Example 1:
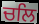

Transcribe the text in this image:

ਚਲਿ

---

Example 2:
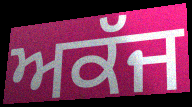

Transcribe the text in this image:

ਅਕੱਜ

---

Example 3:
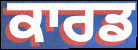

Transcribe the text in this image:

ਕਾਰਡ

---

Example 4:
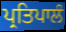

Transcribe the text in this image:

ਪ੍ਰਤਿਪਾਲੰ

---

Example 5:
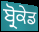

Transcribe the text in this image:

ਬ੍ਰੋਕੇਡ